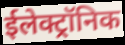
ईलेक्ट्रॉनिक